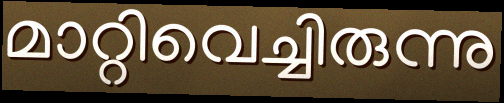
മാറ്റിവെച്ചിരുന്നു